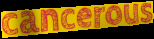
cancerous